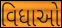
વિધાઓ